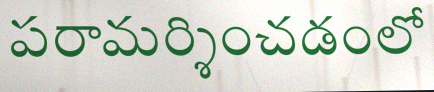
పరామర్శించడంలో